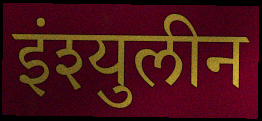
इंश्युलीन